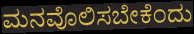
ಮನವೊಲಿಸಬೇಕೆಂದು